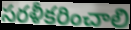
సరళీకరించాలి